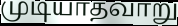
முடியாதவாறு